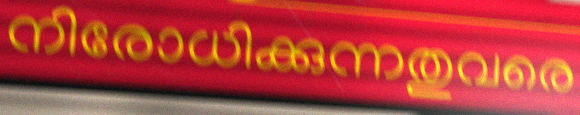
നിരോധിക്കുന്നതുവരെ